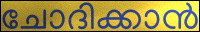
ചോദിക്കാൻ